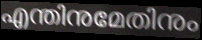
എന്തിനുമേതിനും